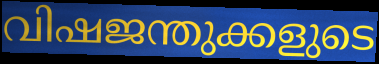
വിഷജന്തുക്കളുടെ